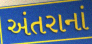
અંતરાનાં